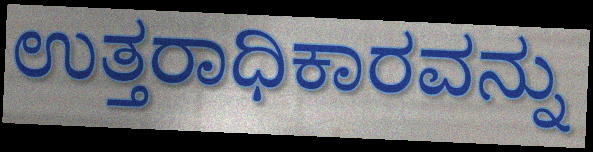
ಉತ್ತರಾಧಿಕಾರವನ್ನು